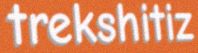
trekshitiz